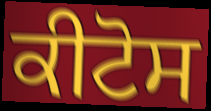
ਕੀਟੋਸ